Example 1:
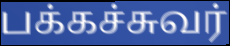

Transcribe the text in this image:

பக்கச்சுவர்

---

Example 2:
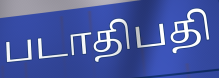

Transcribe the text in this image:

படாதிபதி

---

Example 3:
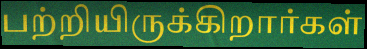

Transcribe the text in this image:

பற்றியிருக்கிறார்கள்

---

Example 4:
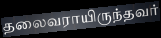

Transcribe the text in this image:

தலைவராயிருந்தவர்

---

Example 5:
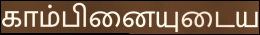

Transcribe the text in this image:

காம்பினையுடைய